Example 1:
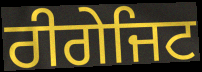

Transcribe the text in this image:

ਰੀਗੇਜਿਟ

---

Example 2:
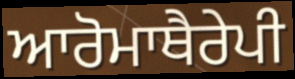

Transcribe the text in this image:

ਆਰੋਮਾਥੈਰੇਪੀ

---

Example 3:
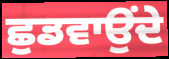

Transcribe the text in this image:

ਛੁਡਵਾਉਂਦੇ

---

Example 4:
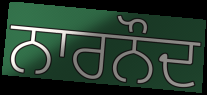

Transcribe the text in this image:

ਨਾਰਨੌਦ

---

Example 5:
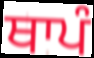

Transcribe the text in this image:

ਥਾਪੰ